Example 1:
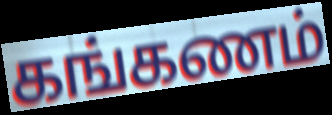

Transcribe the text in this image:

கங்கணம்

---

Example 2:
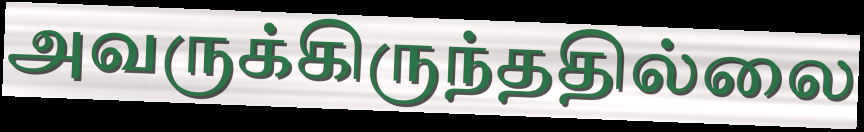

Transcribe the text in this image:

அவருக்கிருந்ததில்லை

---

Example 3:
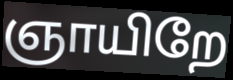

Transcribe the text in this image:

ஞாயிறே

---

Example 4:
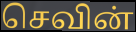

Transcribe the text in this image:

செவின்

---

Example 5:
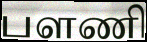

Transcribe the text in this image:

பளணி